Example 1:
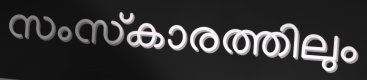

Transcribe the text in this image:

സംസ്‌കാരത്തിലും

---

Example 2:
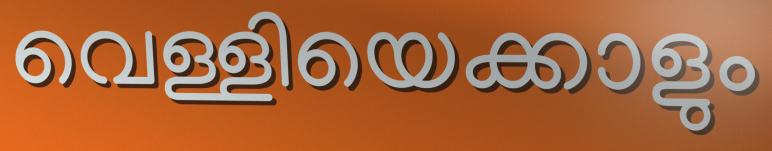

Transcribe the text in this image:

വെള്ളിയെക്കാളും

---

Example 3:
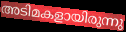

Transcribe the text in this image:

അടിമകളായിരുന്നു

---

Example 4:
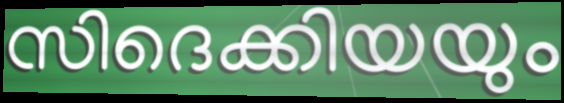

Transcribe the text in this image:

സിദെക്കിയയും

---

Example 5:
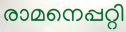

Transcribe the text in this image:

രാമനെപ്പറ്റി